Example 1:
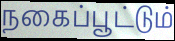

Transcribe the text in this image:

நகைப்பூட்டும்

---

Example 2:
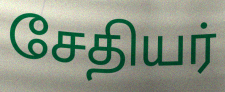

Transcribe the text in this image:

சேதியர்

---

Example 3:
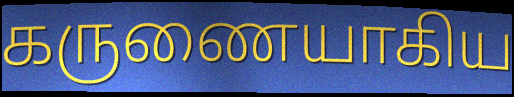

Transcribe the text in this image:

கருணையாகிய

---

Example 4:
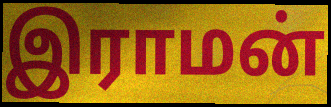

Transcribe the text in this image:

இராமன்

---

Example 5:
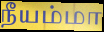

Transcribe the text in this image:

நீயம்மா